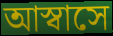
আস্বাসে